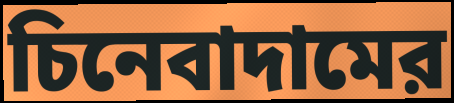
চিনেবাদামের